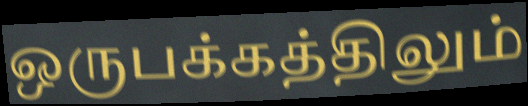
ஒருபக்கத்திலும்